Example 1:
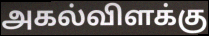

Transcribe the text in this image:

அகல்விளக்கு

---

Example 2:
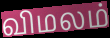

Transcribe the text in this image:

விமலம்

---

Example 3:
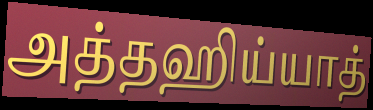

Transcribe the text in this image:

அத்தஹிய்யாத்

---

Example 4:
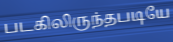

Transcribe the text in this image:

படகிலிருந்தபடியே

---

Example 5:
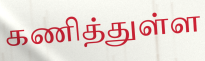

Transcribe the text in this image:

கணித்துள்ள